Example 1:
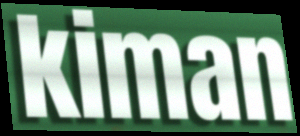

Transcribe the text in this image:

kiman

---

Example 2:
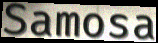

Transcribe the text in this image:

Samosa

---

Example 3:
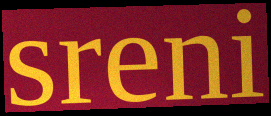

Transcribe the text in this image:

sreni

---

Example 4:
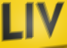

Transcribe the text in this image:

LIV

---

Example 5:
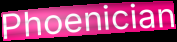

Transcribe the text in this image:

Phoenician